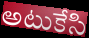
అటుకేసి